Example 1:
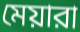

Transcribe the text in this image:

মেয়ারা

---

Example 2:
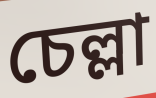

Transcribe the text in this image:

চেল্লা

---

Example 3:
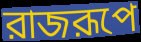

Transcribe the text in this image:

রাজরূপে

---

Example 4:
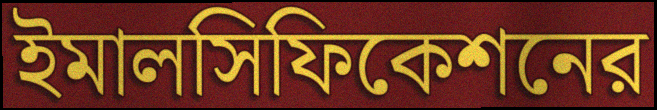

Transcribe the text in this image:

ইমালসিফিকেশনের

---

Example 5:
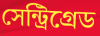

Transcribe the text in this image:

সেন্ট্রিগ্রেড